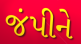
જંપીને